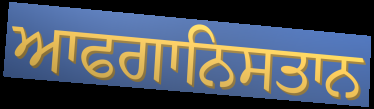
ਆਫਗਾਨਿਸਤਾਨ